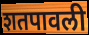
शतपावली